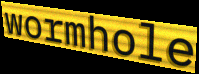
wormhole